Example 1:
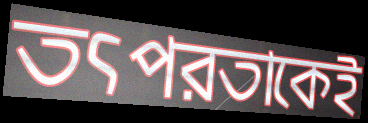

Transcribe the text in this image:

তৎপরতাকেই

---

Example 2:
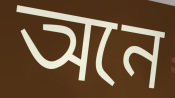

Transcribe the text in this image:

অনে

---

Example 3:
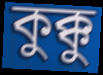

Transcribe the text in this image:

কুক্কু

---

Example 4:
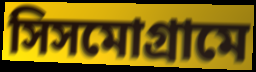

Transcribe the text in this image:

সিসমোগ্রামে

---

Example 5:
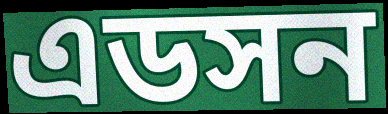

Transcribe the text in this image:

এডসন